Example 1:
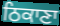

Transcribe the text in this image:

ਠਿਕਾਣਾ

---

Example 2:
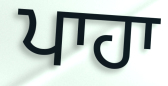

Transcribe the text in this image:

ਪਾਹਾ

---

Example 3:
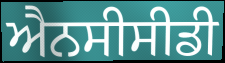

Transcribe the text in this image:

ਐਨਸੀਸੀਡੀ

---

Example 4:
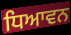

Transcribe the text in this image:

ਧਿਆਵਨ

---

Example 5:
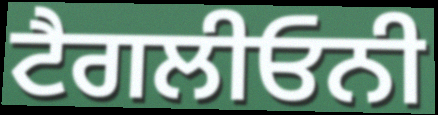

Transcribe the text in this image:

ਟੈਗਲੀਓਨੀ